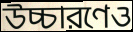
উচ্চারণেও